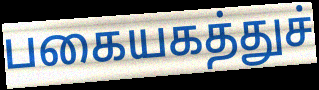
பகையகத்துச்